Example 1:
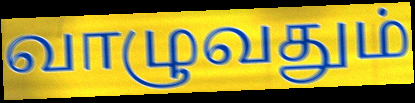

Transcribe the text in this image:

வாழுவதும்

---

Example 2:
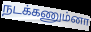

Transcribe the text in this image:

நடக்கணும்னா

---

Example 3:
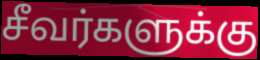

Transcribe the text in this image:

சீவர்களுக்கு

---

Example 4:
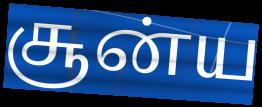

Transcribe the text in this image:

சூன்ய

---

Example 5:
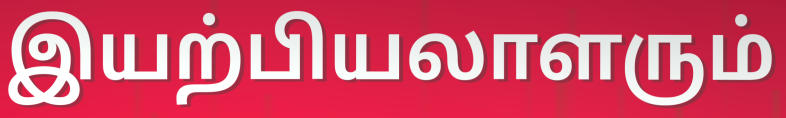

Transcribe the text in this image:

இயற்பியலாளரும்